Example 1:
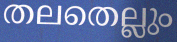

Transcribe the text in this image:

തലതെല്ലും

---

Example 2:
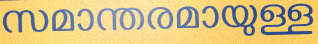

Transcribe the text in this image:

സമാന്തരമായുള്ള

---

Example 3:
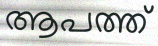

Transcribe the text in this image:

ആപത്ത്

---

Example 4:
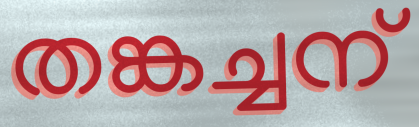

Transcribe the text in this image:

തങ്കച്ചന്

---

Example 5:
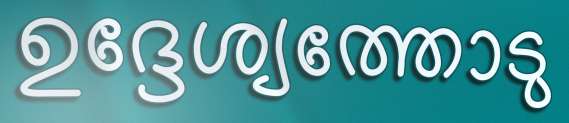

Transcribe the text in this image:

ഉദ്ദേശ്യത്തോടു